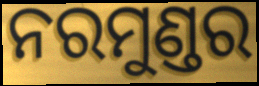
ନରମୁଣ୍ଡର